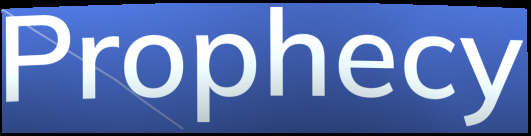
Prophecy